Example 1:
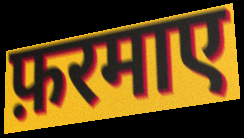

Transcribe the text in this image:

फ़रमाए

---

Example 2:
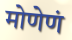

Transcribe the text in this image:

मोणेणं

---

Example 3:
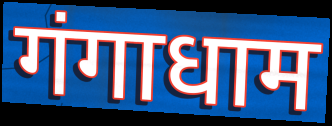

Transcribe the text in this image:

गंगाधाम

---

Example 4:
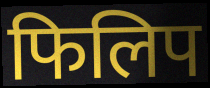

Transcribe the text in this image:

फिलिप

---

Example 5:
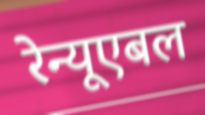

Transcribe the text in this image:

रेन्यूएबल